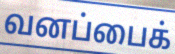
வனப்பைக்